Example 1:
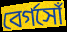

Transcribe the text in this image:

বের্গসোঁ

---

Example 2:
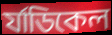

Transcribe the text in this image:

র্যাডিকেল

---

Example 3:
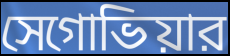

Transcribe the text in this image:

সেগোভিয়ার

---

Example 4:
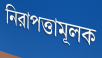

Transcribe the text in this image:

নিরাপত্তামূলক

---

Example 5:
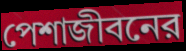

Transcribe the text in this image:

পেশাজীবনের